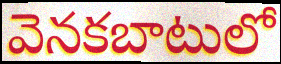
వెనకబాటులో